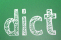
dict